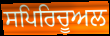
ਸਪਿਰਿਚੂਅਲ